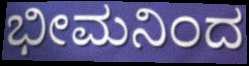
ಭೀಮನಿಂದ